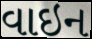
વાઇન